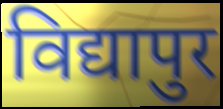
विद्यापुर